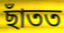
ছাঁতত